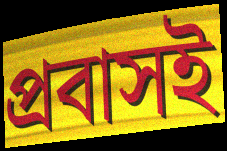
প্রবাসই